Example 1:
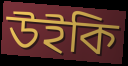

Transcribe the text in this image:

উইকি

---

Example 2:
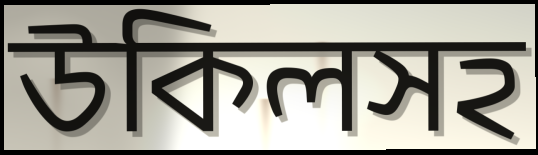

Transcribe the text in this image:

উকিলসহ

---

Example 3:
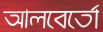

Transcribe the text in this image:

আলবের্তো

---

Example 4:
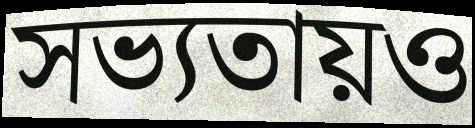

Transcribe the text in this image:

সভ্যতায়ও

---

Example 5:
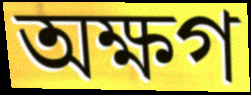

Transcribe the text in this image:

অক্ষগ